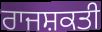
ਰਾਜਸ਼ਕਤੀ